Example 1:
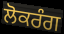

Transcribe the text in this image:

ਲੋਕਰੰਗ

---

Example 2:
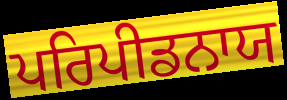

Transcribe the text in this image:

ਪਰਿਪੀਡਨਾਯ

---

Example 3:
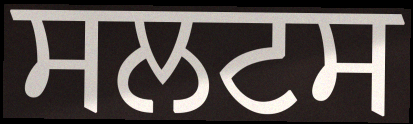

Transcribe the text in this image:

ਸਲਟਸ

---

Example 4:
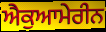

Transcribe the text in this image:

ਐਕੁਆਮੇਰੀਨ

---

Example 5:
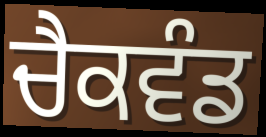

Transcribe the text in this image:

ਚੈਕਵੰਡ